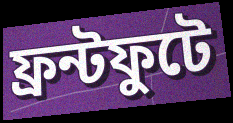
ফ্রন্টফুটে